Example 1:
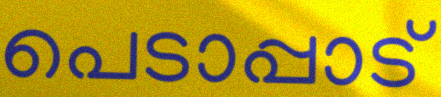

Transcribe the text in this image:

പെടാപ്പാട്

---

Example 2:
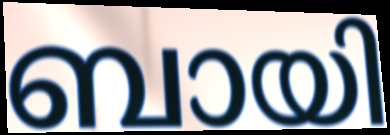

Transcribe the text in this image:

ബായി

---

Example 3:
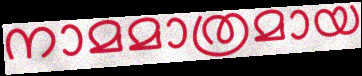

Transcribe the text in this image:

നാമമാത്രമായ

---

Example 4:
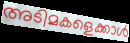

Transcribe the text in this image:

അടിമകളെക്കാൾ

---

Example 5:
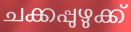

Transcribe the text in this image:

ചക്കപ്പുഴുക്ക്